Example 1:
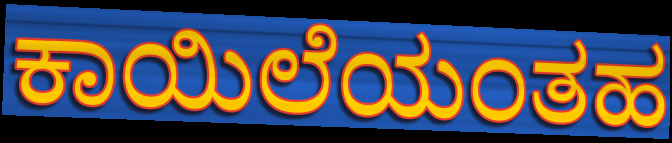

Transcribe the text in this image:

ಕಾಯಿಲೆಯಂತಹ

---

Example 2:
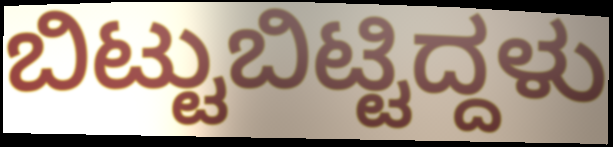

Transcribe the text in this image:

ಬಿಟ್ಟುಬಿಟ್ಟಿದ್ದಳು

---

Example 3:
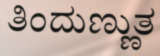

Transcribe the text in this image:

ತಿಂದುಣ್ಣುತ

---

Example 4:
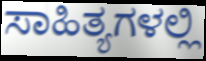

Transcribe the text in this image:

ಸಾಹಿತ್ಯಗಳಲ್ಲಿ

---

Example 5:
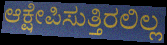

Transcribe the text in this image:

ಆಕ್ಷೇಪಿಸುತ್ತಿರಲಿಲ್ಲ